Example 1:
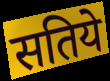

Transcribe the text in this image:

सतिये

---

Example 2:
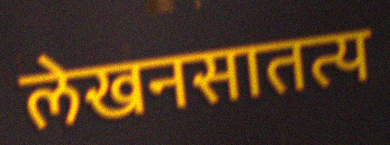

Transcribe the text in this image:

लेखनसातत्य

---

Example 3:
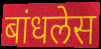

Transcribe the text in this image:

बांधलेस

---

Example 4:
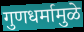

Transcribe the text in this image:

गुणधर्मामुळे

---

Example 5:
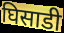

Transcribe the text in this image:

घिसाडी